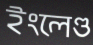
ইংলেণ্ড